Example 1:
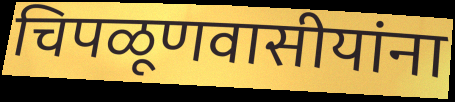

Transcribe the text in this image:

चिपळूणवासीयांना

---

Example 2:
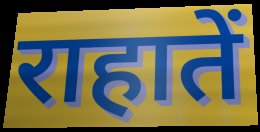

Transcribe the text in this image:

राहातें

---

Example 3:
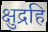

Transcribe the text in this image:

क्षुद्रहि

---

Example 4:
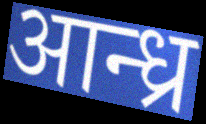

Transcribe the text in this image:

आन्ध्र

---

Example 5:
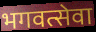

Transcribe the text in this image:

भगवत्सेवा